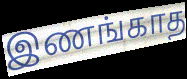
இணங்காத